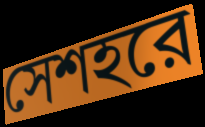
সেশহরে